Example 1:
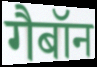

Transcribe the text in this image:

गैबॉन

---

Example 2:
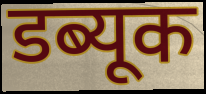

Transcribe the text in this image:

डब्यूक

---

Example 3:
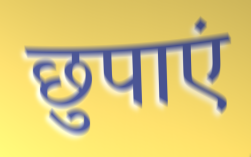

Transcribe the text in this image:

छुपाएं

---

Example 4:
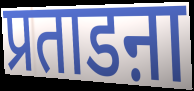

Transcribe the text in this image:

प्रताडऩा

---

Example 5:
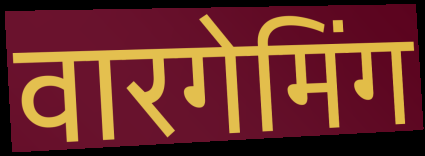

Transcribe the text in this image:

वारगेमिंग